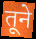
तूने